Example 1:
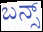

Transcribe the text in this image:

ಬನ್ಸ್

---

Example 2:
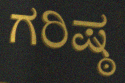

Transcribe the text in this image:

ಗರಿಷ್ಠ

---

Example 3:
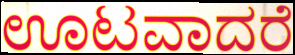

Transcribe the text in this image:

ಊಟವಾದರೆ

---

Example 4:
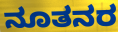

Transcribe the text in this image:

ನೂತನರ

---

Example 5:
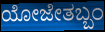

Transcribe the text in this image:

ಯೋಜೇತಬ್ಬಂ